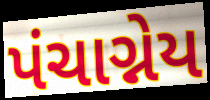
પંચાગ્નેય